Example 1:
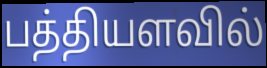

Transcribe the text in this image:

பத்தியளவில்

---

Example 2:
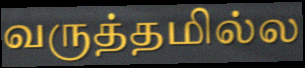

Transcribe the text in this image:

வருத்தமில்ல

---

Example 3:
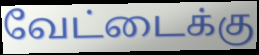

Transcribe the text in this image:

வேட்டைக்கு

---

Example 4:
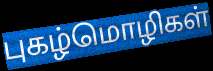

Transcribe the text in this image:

புகழ்மொழிகள்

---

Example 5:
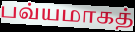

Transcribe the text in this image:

பவ்யமாகத்